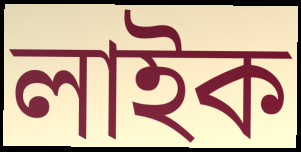
লাইক